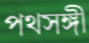
পথসঙ্গী